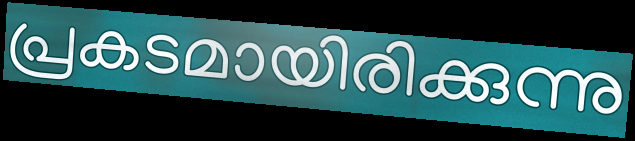
പ്രകടമായിരിക്കുന്നു